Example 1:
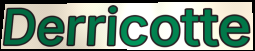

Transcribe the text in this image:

Derricotte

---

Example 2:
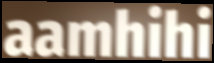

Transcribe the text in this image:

aamhihi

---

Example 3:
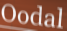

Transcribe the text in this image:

Oodal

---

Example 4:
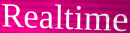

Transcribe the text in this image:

Realtime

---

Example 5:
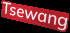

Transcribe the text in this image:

Tsewang